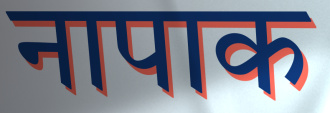
नापाक